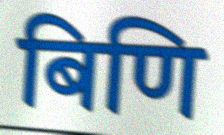
बिणि